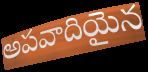
అపవాదియైన